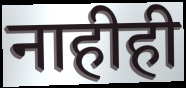
नाहीही